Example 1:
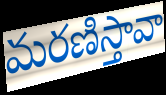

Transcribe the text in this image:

మరణిస్తావా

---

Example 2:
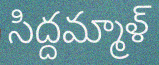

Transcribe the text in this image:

సిద్దమ్మాళ్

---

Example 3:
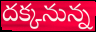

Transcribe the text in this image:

దక్కనున్న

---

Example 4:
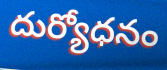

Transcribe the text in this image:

దుర్యోధనం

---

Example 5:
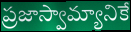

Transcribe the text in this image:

ప్రజాస్వామ్యానికే